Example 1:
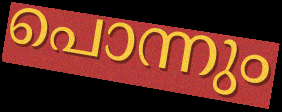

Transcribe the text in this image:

പൊന്നും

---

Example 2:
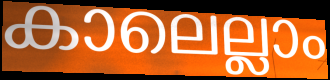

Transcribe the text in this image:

കാലെല്ലാം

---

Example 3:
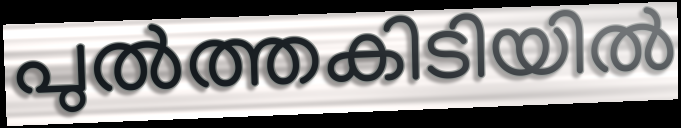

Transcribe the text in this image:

പുൽത്തകിടിയിൽ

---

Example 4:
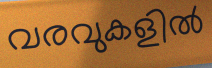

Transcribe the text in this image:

വരവുകളിൽ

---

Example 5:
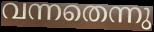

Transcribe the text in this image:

വന്നതെന്നു